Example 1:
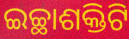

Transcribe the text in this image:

ଇଚ୍ଛାଶକ୍ତିଟି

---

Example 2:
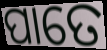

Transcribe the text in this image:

ପାତେ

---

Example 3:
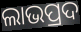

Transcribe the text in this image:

ଲାଭପ୍ରଦ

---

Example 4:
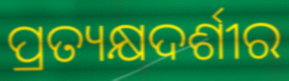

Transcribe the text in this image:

ପ୍ରତ୍ୟକ୍ଷଦର୍ଶୀର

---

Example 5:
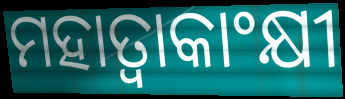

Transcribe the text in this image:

ମହାତ୍ୱାକାଂକ୍ଷୀ